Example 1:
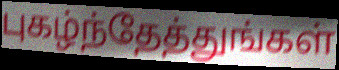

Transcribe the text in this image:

புகழ்ந்தேத்துங்கள்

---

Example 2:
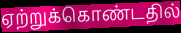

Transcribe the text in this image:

ஏற்றுக்கொண்டதில்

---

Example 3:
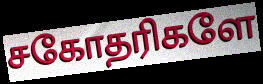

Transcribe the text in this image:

சகோதரிகளே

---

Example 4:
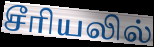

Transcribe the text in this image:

சீரியலில்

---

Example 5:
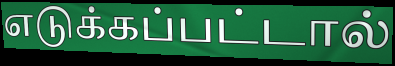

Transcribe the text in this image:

எடுக்கப்பட்டால்